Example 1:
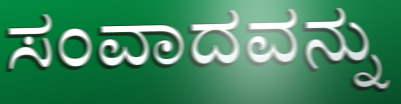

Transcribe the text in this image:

ಸಂವಾದವನ್ನು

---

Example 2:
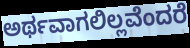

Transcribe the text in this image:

ಅರ್ಥವಾಗಲಿಲ್ಲವೆಂದರೆ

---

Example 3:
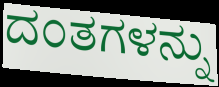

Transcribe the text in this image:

ದಂತಗಳನ್ನು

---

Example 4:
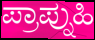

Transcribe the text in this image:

ಪ್ರಾಪ್ನುಹಿ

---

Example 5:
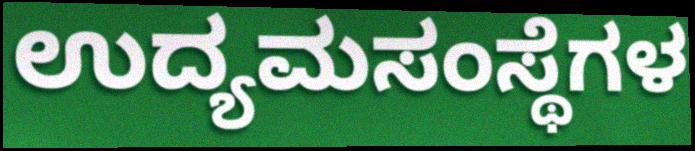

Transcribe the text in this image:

ಉದ್ಯಮಸಂಸ್ಥೆಗಳ